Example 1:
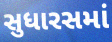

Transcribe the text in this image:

સુધારસમાં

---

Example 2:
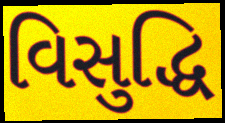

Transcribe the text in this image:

વિસુદ્ધિ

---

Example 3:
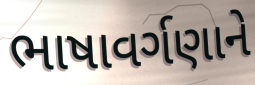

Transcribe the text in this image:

ભાષાવર્ગણાને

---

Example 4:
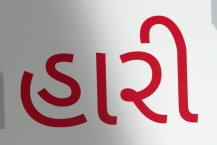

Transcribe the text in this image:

હારી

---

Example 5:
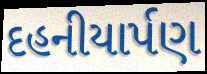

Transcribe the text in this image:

દહનીયાર્પણ